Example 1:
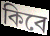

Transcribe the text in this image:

কিবে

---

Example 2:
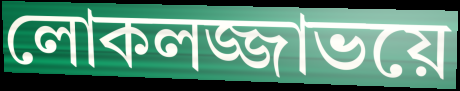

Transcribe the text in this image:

লোকলজ্জাভয়ে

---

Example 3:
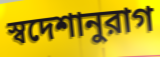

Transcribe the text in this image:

স্বদেশানুরাগ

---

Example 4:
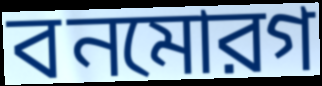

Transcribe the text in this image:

বনমোরগ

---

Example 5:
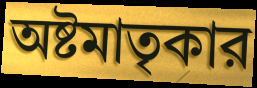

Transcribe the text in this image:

অষ্টমাতৃকার